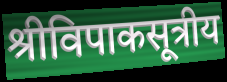
श्रीविपाकसूत्रीय